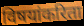
विषयांकरिता